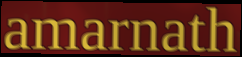
amarnath